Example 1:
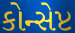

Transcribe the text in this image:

કોન્સેપ્ટ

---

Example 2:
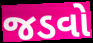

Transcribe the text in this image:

જડવો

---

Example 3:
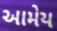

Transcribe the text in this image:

આમેય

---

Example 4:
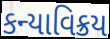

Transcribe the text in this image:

કન્યાવિક્રય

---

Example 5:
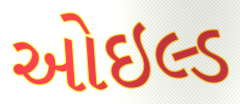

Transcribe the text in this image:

ઓઇલ્ડ